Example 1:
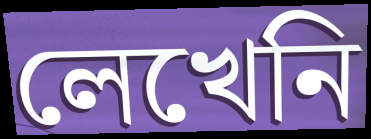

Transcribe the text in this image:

লেখেনি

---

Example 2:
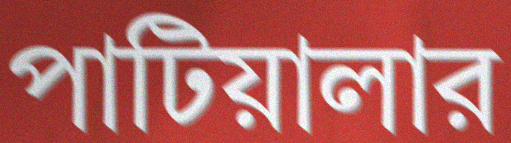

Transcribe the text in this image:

পাটিয়ালার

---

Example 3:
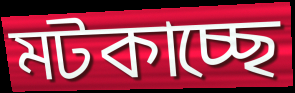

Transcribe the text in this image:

মটকাচ্ছে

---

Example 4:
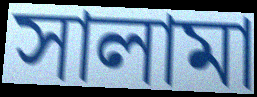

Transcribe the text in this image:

সালামা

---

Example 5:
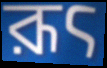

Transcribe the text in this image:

রূৎ